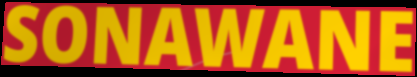
SONAWANE